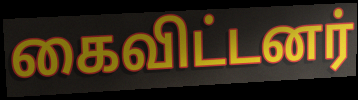
கைவிட்டனர்